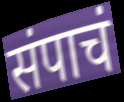
संपाचं